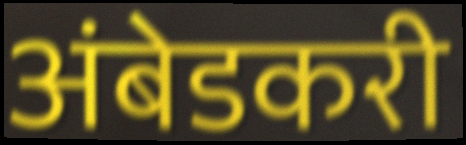
अंबेडकरी